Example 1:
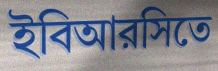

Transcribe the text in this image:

ইবিআরসিতে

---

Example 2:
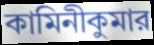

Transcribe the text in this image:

কামিনীকুমার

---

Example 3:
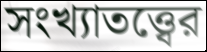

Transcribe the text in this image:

সংখ্যাতত্ত্বের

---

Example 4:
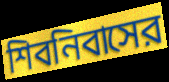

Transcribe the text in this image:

শিবনিবাসের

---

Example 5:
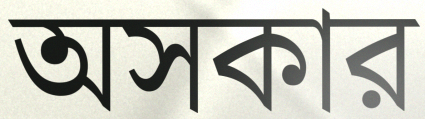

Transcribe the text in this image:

অসকার